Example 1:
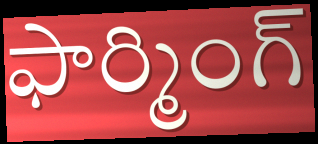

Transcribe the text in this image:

ఫార్మింగ్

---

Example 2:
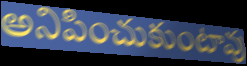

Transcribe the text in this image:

అనిపించుకుంటావు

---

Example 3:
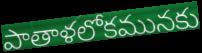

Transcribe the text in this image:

పాతాళలోకమునకు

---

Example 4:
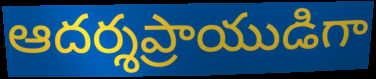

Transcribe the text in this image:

ఆదర్శప్రాయుడిగా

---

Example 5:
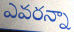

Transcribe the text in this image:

ఎవరన్నా